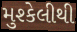
મુશ્કેલીથી